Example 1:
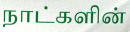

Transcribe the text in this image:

நாட்களின்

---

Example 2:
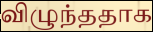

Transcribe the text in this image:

விழுந்ததாக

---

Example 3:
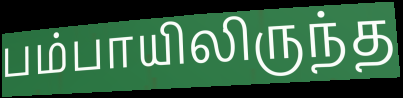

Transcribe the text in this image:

பம்பாயிலிருந்த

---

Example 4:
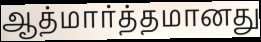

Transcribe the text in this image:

ஆத்மார்த்தமானது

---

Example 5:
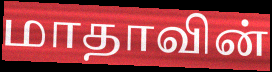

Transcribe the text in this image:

மாதாவின்